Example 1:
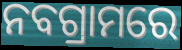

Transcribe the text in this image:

ନବଗ୍ରାମରେ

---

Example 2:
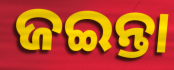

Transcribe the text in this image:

ଜଇନ୍ତା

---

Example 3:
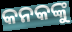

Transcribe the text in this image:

କନକଙ୍କୁ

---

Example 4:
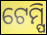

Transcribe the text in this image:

ଟେମ୍ପି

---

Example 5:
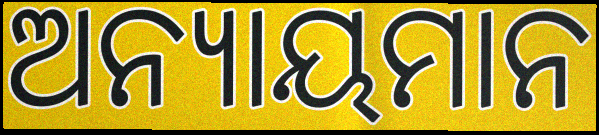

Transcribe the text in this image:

ଅନ୍ୟାୟମାନ